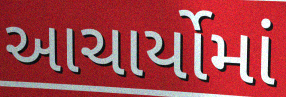
આચાર્યોમાં